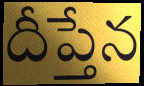
దీప్తేన